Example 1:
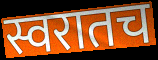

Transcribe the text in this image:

स्वरातच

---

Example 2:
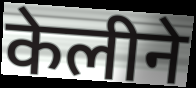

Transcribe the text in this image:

केलीने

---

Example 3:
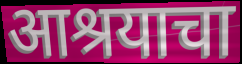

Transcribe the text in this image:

आश्रयाचा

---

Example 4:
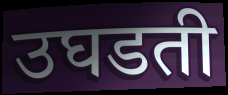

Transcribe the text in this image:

उघडती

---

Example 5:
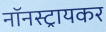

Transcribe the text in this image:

नॉनस्ट्रायकर